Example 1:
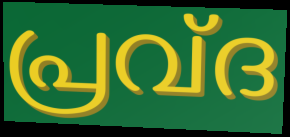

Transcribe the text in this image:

പ്രവ്ദ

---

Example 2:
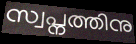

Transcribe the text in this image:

സ്വപ്നത്തിനു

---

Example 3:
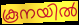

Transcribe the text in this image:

കൂനയിൽ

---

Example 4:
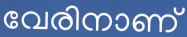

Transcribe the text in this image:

വേരിനാണ്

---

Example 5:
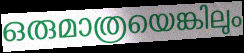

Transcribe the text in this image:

ഒരുമാത്രയെങ്കിലും